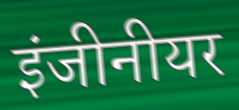
इंजीनीयर